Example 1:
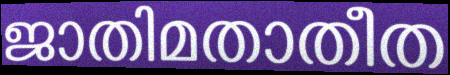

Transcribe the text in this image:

ജാതിമതാതീത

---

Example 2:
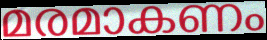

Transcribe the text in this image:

മരമാകണം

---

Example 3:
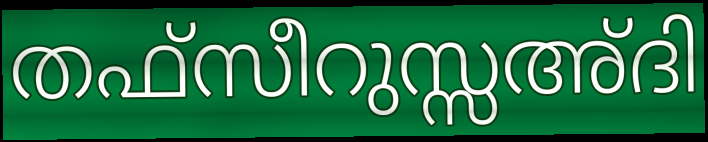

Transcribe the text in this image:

തഫ്സീറുസ്സഅ്ദി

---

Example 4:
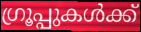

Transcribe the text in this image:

ഗ്രൂപ്പുകൾക്ക്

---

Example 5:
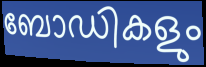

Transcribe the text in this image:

ബോഡികളും